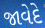
જાવેદે